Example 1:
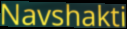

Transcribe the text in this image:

Navshakti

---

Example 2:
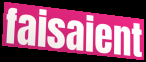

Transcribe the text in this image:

faisaient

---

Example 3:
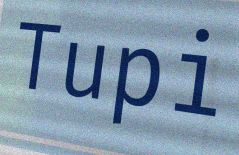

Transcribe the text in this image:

Tupi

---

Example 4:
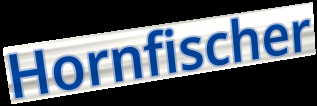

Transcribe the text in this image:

Hornfischer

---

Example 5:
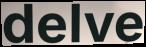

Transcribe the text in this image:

delve